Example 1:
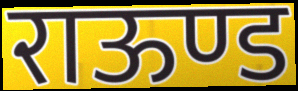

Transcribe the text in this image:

राऊण्ड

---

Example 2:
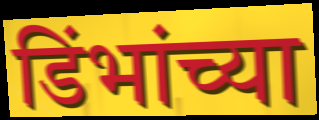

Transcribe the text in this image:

डिंभांच्या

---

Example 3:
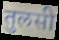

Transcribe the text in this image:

तुलसी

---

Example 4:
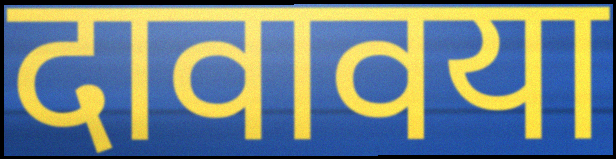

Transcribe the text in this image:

दावावया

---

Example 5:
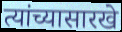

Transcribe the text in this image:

त्यांच्यासारखे